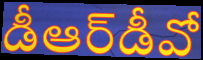
డీఆర్‌డీవో